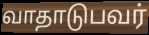
வாதாடுபவர்